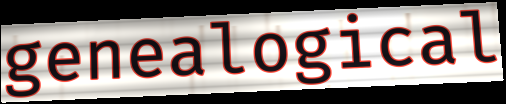
genealogical